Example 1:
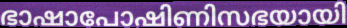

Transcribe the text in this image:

ഭാഷാപോഷിണിസഭയായി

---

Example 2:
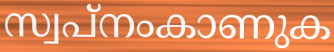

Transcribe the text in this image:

സ്വപ്നംകാണുക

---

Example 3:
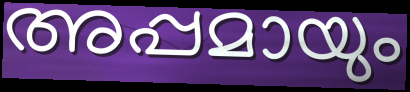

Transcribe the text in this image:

അപ്പമായും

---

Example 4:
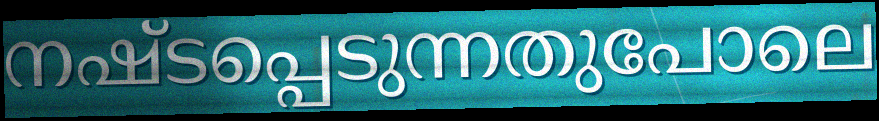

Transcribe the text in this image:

നഷ്ടപ്പെടുന്നതുപോലെ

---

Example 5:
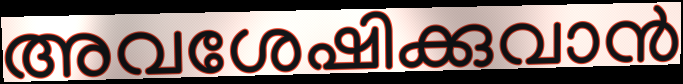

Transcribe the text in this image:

അവശേഷിക്കുവാൻ